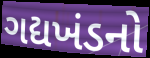
ગદ્યખંડનો